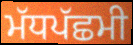
ਮੱਧਪੱਛਮੀ